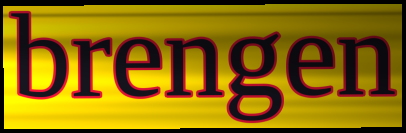
brengen